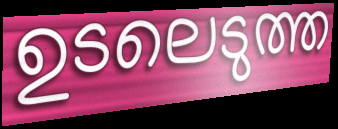
ഉടലെടുത്ത